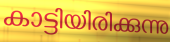
കാട്ടിയിരിക്കുന്നു